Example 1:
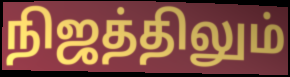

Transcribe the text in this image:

நிஜத்திலும்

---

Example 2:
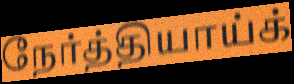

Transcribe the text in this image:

நேர்த்தியாய்க்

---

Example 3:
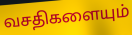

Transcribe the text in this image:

வசதிகளையும்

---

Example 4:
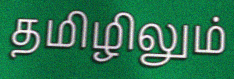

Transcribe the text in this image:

தமிழிலும்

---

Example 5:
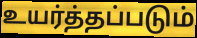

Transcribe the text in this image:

உயர்த்தப்படும்